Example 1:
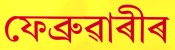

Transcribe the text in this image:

ফেব্ৰুৱাৰীৰ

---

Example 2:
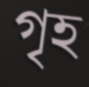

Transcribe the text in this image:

গৃহ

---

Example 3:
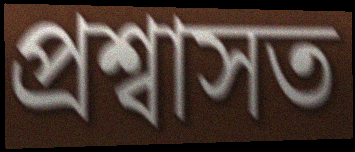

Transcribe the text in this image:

প্ৰশ্বাসত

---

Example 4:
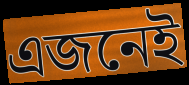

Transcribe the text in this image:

এজনেই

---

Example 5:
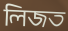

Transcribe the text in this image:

লিজত